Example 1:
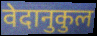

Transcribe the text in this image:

वेदानुकुल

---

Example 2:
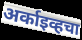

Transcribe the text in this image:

अर्काइव्हचा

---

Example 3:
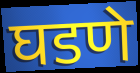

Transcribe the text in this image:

घडणे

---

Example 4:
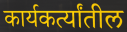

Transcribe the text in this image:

कार्यकर्त्यांतील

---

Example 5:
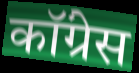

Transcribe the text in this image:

कॉंग्रेस